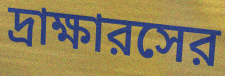
দ্রাক্ষারসের